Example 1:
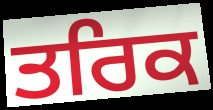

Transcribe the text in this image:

ਤਰਿਕ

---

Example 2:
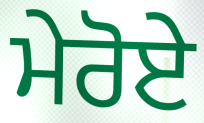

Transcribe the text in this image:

ਮੇਰੋਏ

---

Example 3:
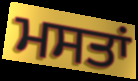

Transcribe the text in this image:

ਮਸਤਾਂ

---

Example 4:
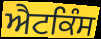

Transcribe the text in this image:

ਐਟਕਿੰਸ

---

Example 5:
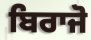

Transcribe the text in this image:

ਬਿਰਾਜੋ